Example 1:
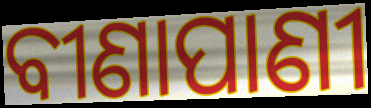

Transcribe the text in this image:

ବୀଣାପାଣୀ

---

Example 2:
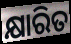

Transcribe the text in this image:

କ୍ଷାରିତ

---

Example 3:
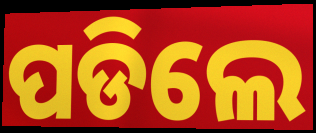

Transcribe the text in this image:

ପଡିଲେ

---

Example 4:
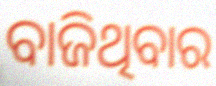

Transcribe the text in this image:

ବାଜିଥିବାର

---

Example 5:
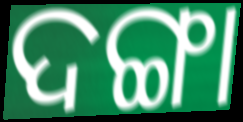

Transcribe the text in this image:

ଦଙ୍ଗା